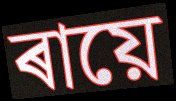
ৰায়ে